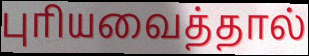
புரியவைத்தால்